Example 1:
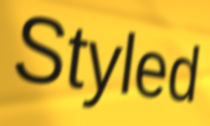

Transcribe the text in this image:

Styled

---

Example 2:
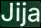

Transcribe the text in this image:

Jija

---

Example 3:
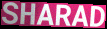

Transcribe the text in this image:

SHARAD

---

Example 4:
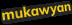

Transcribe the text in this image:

mukawyan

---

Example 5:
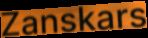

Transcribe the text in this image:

Zanskars